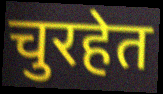
चुरहेत